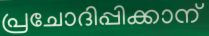
പ്രചോദിപ്പിക്കാന്